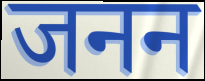
जनन